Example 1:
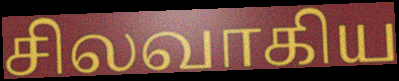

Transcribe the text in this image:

சிலவாகிய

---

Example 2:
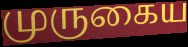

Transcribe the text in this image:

முருகைய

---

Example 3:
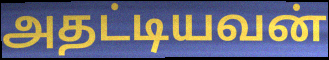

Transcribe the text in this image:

அதட்டியவன்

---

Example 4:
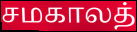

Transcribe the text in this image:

சமகாலத்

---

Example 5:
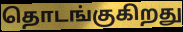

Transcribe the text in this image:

தொடங்குகிறது